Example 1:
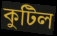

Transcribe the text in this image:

কুটিল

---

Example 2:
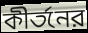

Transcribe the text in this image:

কীর্তনের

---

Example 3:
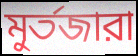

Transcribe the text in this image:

মুর্তজারা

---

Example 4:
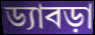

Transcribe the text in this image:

ড্যাবড়া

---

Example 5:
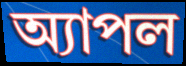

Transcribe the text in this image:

অ্যাপল